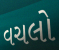
વચલો